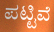
ಪಟ್ಟಿವೆ